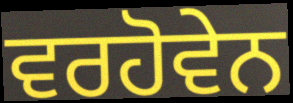
ਵਰਹੋਵੇਨ